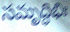
సమృద్ధిభిః